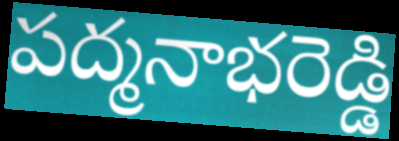
పద్మనాభరెడ్డి